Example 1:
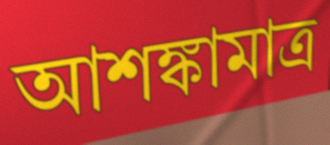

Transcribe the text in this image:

আশঙ্কামাত্র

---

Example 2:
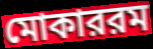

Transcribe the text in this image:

মোকাররম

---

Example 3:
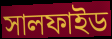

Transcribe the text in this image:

সালফাইড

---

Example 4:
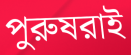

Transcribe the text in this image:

পুরুষরাই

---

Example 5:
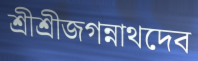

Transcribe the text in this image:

শ্রীশ্রীজগন্নাথদেব